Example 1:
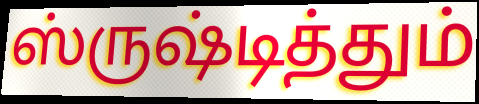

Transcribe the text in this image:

ஸ்ருஷ்டித்தும்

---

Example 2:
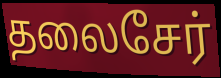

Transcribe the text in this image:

தலைசேர்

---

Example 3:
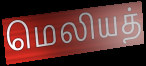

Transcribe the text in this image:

மெலியத்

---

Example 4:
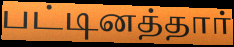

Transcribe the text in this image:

பட்டினத்தார்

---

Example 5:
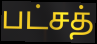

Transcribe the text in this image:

பட்சத்